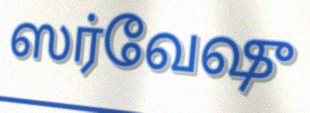
ஸர்வேஷு